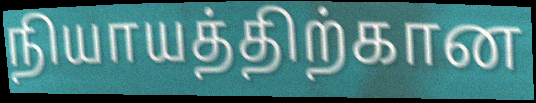
நியாயத்திற்கான